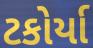
ટકોર્યા